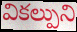
వికల్పుని